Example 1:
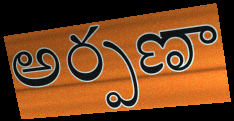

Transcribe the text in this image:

అర్పణా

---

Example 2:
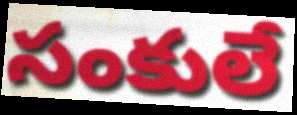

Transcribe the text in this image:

సంకులే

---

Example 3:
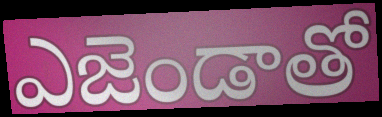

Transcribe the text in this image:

ఎజెండాతో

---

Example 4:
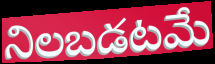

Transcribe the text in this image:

నిలబడటమే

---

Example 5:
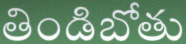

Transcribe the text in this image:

తిండిబోతు